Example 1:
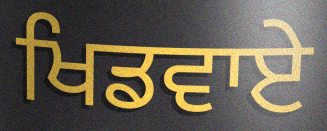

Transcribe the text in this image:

ਖਿਡਵਾਏ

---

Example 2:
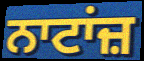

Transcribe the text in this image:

ਨਾਟਾਂਜ਼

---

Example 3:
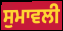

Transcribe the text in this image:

ਸੁਮਾਵਲੀ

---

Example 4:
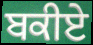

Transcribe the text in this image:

ਬਕੀਏ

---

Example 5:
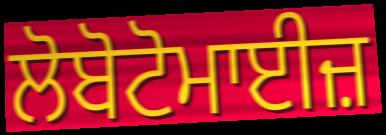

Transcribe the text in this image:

ਲੋਬੋਟੋਮਾਈਜ਼